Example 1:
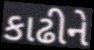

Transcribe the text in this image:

કાઢીને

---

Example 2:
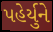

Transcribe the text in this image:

પહેર્યુને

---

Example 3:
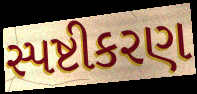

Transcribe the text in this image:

સ્પષ્ટીકરણ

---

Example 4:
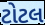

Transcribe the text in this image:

ટોટલ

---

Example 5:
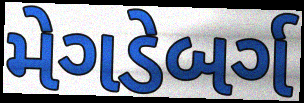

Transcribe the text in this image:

મેગડેબર્ગ